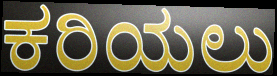
ಕರಿಯಲು